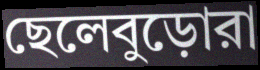
ছেলেবুড়োরা